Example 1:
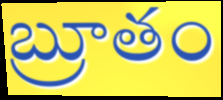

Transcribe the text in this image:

బ్రూతం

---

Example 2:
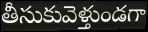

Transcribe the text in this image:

తీసుకువెళ్తుండగా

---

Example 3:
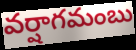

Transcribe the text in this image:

వర్షాగమంబు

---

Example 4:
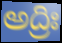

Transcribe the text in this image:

అద్రిః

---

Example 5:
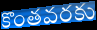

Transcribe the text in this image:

కొంతవరకు